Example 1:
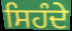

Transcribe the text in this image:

ਸਿਹੰਦੇ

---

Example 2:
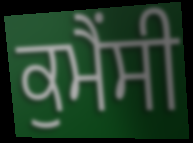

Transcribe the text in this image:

ਕੁਮੈਂਸੀ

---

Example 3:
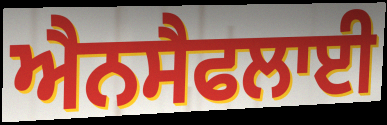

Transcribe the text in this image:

ਐਨਸੈਫਲਾਈ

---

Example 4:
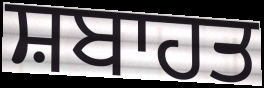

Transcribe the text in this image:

ਸ਼ਬਾਹਤ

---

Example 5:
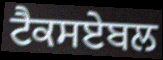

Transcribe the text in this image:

ਟੈਕਸਏਬਲ